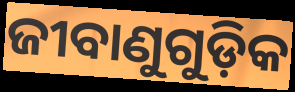
ଜୀବାଣୁଗୁଡ଼ିକ